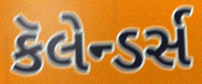
કૅલેન્ડર્સ